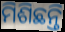
ମିଶିଛନ୍ତି